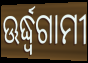
ଊର୍ଦ୍ଧ୍ଵଗାମୀ